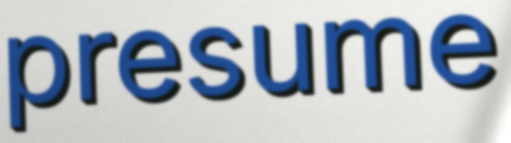
presume